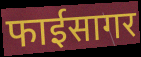
फाईसागर